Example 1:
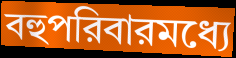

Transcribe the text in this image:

বহুপরিবারমধ্যে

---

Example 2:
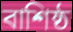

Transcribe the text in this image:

বাশিষ্ঠ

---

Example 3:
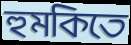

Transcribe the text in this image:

হুমকিতে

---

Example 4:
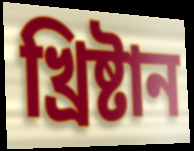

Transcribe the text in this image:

খ্রিষ্টান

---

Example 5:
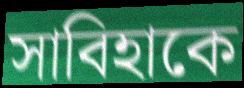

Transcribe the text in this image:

সাবিহাকে